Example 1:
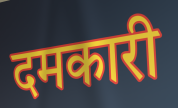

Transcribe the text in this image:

दमकारी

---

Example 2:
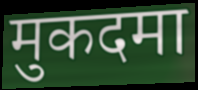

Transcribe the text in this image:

मुकदमा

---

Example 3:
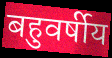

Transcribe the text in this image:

बहुवर्षीय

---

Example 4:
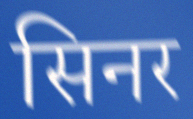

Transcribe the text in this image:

सिनर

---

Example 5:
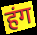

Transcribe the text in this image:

हंग